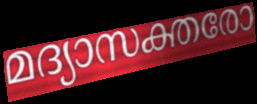
മദ്യാസക്തരോ